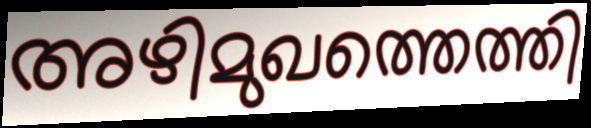
അഴിമുഖത്തെത്തി